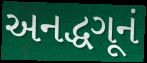
અનદ્ધગૂનં